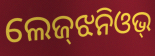
ଲେଜ୍‌ଝନିଓଭ୍